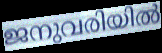
ജനുവരിയിൽ